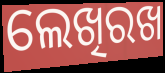
ଲେଖିରଖ